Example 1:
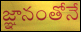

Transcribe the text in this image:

జ్ఞానంతోనే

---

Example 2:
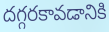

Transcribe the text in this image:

దగ్గరకావడానికి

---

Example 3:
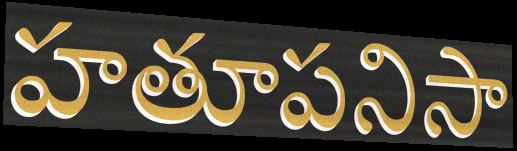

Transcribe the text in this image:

హతూపనిసా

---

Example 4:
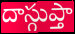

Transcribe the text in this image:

దాస్గుప్తా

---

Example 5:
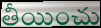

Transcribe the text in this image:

తీయించు